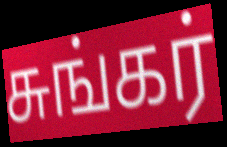
சுங்கர்